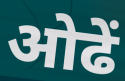
ओढें